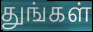
துங்கள்